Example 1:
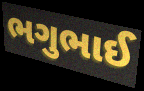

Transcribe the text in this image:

ભગુભાઈ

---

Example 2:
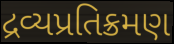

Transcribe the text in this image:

દ્રવ્યપ્રતિક્રમણ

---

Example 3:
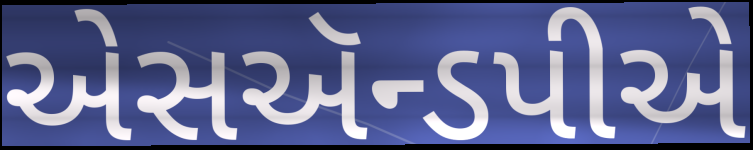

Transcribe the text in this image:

એસઍન્ડપીએ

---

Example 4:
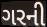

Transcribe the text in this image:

ગરની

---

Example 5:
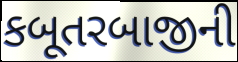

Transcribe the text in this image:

કબૂતરબાજીની